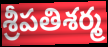
శ్రీపతిశర్మ